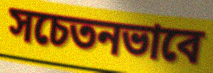
সচেতনভাবে